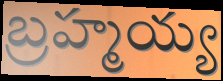
బ్రహ్మయ్య